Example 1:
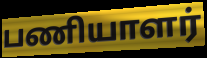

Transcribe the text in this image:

பணியாளர்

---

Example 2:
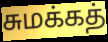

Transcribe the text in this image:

சுமக்கத்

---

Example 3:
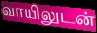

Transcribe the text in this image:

வாயிலுடன்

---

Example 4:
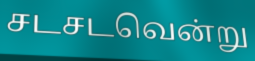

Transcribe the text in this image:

சடசடவென்று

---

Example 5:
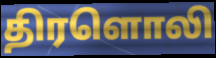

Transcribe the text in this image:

திரளொலி